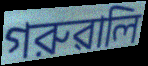
গৰুৱালি